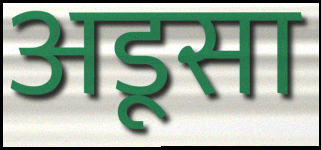
अडूसा